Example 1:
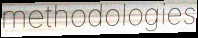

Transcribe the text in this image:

methodologies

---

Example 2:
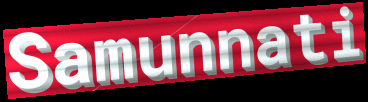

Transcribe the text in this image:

Samunnati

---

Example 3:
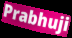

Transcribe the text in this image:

Prabhuji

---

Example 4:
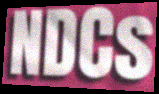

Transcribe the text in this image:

NDCs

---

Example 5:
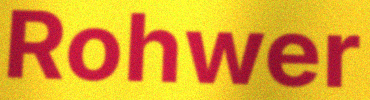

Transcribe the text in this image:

Rohwer